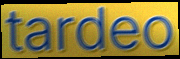
tardeo